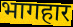
भागहार